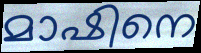
മാഷിനെ